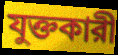
যুক্তকারী